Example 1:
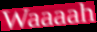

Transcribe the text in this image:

Waaaah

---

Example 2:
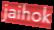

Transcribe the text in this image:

jaihok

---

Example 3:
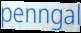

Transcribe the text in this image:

penngal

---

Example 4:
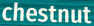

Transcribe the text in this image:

chestnut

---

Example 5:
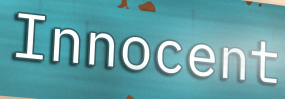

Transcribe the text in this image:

Innocent